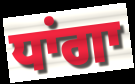
ਧਾਂਗਾ